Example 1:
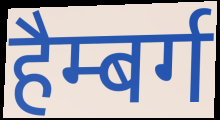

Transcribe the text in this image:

हैम्बर्ग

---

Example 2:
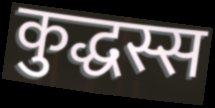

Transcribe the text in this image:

कुद्धस्स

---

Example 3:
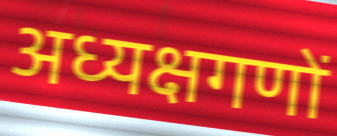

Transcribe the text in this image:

अध्यक्षगणों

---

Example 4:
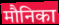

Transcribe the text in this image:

मौनिका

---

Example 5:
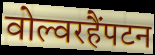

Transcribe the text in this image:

वोल्वरहैंपटन